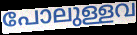
പോലുള്ളവ